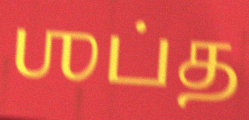
ஶப்த